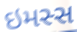
ઇમસ્સ